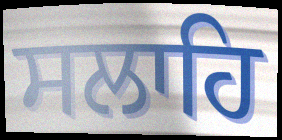
ਸਲਾਹਿ